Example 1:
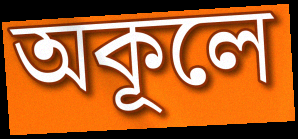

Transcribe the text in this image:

অকূলে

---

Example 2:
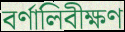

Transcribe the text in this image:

বর্ণালিবীক্ষণ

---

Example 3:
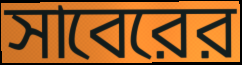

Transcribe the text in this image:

সাবেরের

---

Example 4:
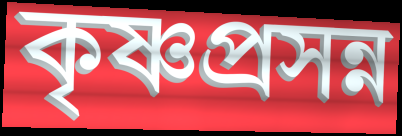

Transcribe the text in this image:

কৃষ্ণপ্রসন্ন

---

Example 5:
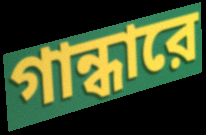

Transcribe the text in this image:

গান্ধারে